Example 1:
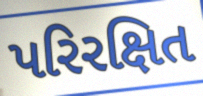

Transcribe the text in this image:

પરિરક્ષિત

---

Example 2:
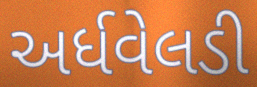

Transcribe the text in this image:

અર્ધવેલડી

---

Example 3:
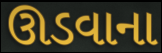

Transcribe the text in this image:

ઊડવાના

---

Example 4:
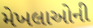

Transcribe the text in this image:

મેખલાઓની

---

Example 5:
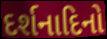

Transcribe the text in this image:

દર્શનાદિનો